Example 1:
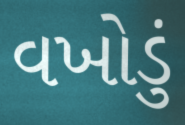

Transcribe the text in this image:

વખોડું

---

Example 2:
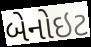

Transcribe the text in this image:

બેનોઇટ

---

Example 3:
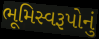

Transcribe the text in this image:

ભૂમિસ્વરૂપોનું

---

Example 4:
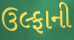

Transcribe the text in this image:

ઉલ્ફાની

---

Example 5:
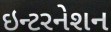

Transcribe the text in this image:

ઇન્ટરનેશન